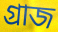
গ্ৰাজ